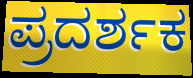
ಪ್ರದರ್ಶಕ